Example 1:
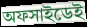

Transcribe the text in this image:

অফসাইডেই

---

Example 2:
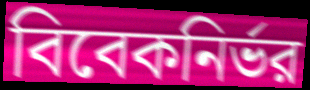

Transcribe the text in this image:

বিবেকনির্ভর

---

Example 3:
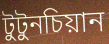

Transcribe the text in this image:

টুটুনচিয়ান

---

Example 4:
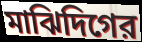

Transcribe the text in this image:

মাঝিদিগের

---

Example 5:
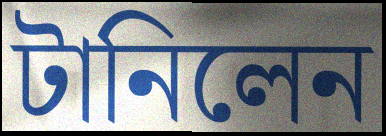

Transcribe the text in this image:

টানিলেন